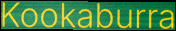
Kookaburra